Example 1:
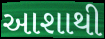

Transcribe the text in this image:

આશાથી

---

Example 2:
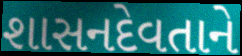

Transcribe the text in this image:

શાસનદેવતાને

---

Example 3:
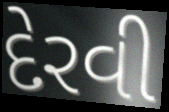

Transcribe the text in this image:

દેરવી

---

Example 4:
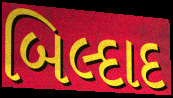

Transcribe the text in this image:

બિલ્દાદ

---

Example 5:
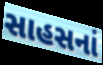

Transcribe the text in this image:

સાહસનાં